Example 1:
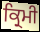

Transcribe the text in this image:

ਕ੍ਰਿਮੀ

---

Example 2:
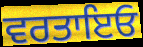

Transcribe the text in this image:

ਵਰਤਾਇਓ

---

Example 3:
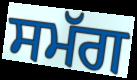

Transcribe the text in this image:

ਸਮੱਗ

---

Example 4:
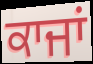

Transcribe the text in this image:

ਕਾਜਾਂ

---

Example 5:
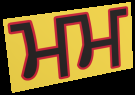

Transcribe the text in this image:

ਮਮ